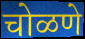
चोळणे